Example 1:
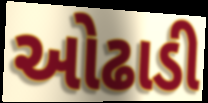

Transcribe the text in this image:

ઓઢાડી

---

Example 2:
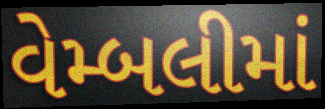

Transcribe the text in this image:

વેમ્બલીમાં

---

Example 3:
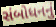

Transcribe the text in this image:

સંબોધનનું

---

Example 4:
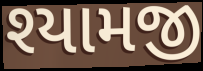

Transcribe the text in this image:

શ્યામજી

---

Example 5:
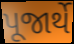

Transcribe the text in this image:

પૂજાર્થે